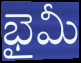
భైమీ